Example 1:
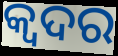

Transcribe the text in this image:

କ୍ୱଦର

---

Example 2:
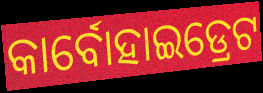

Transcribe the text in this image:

କାର୍ବୋହାଇଡ୍ରେଟ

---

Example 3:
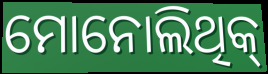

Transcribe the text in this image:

ମୋନୋଲିଥିକ୍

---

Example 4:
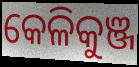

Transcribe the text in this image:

କେଳିକୁଞ୍ଜ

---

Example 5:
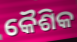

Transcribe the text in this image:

କୈଶିକ